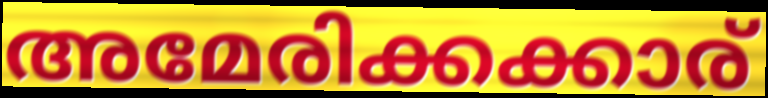
അമേരിക്കക്കാര്